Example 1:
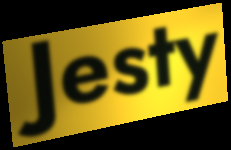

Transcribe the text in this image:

Jesty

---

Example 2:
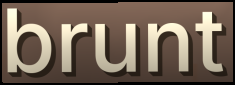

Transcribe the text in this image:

brunt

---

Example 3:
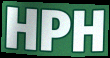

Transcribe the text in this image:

HPH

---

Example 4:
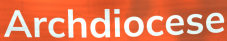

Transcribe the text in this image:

Archdiocese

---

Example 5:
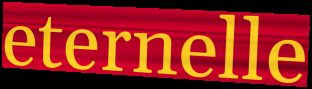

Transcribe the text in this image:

eternelle